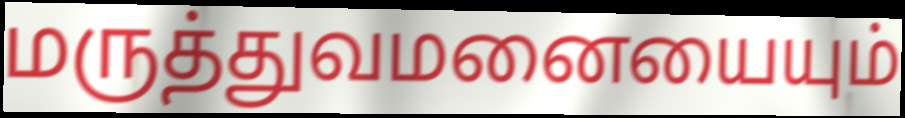
மருத்துவமனையையும்